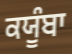
ਕਯੂੰਬਾ